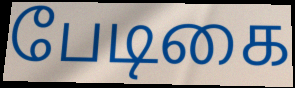
பேடிகை